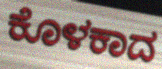
ಕೊಳಕಾದ